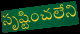
సృష్టించలేని